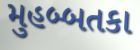
મુહબ્બતકા